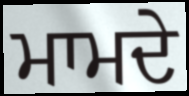
ਮਾਮਦੇ